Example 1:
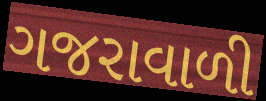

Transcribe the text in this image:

ગજરાવાળી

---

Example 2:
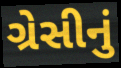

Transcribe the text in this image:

ગ્રેસીનું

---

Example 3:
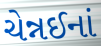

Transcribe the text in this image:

ચેન્નઈનાં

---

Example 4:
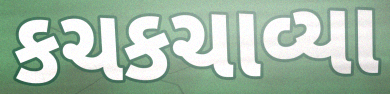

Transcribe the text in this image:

કચકચાવ્યા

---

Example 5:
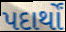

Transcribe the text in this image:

પદાર્થોં